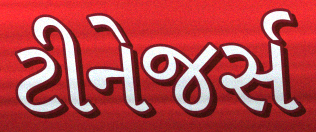
ટીનેજર્સ